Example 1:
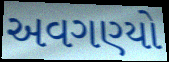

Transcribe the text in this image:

અવગણ્યો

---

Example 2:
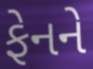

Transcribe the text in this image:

ફેનને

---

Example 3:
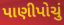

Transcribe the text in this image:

પાણીપોચું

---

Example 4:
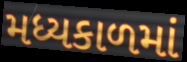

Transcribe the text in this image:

મધ્યકાળમાં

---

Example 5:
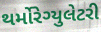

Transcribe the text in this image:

થર્મોરેગ્યુલેટરી